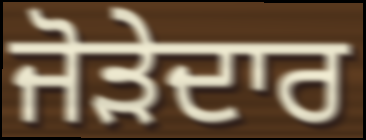
ਜੋੜੇਦਾਰ